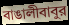
বাঙালীবাবুর